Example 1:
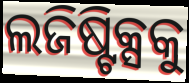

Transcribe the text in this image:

ଲଜିଷ୍ଟିକ୍ସକୁ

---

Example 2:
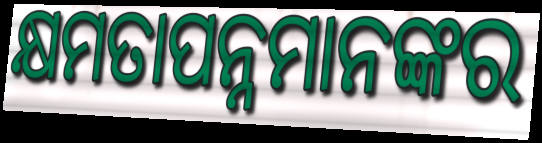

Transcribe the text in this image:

କ୍ଷମତାପନ୍ନମାନଙ୍କର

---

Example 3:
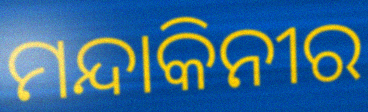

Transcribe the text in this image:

ମନ୍ଦାକିନୀର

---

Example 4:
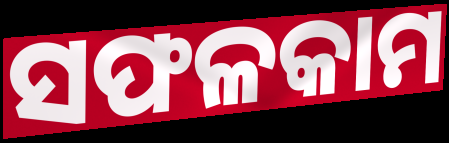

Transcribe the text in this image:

ସଫଳକାମ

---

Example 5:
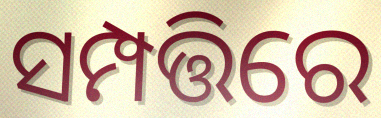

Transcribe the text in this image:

ସମ୍ପତ୍ତିରେ